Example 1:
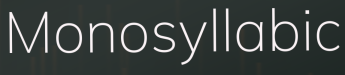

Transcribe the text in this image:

Monosyllabic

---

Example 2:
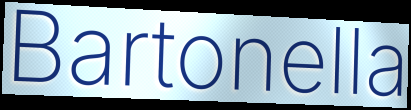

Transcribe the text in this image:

Bartonella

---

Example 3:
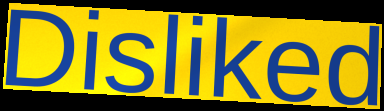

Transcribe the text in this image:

Disliked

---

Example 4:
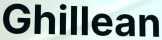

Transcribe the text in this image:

Ghillean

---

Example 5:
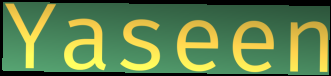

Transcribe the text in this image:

Yaseen